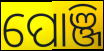
ପୋଞ୍ଜି